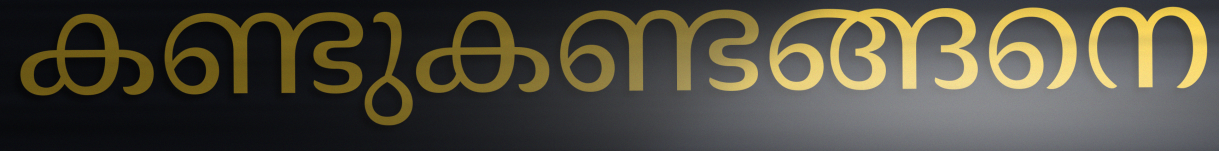
കണ്ടുകണ്ടങ്ങനെ